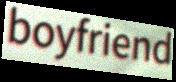
boyfriend